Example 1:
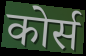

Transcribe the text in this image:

कोर्स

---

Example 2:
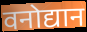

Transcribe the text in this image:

वनोद्यान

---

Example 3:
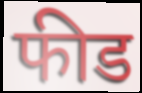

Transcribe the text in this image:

फीड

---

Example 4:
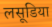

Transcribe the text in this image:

लसूडिया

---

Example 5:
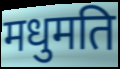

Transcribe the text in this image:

मधुमति